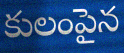
కులంపైన